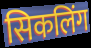
सिकलिंग